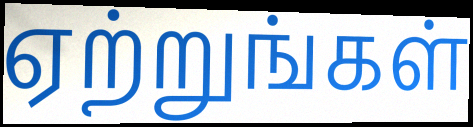
ஏற்றுங்கள்